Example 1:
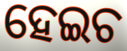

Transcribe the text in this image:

ହେଇଚ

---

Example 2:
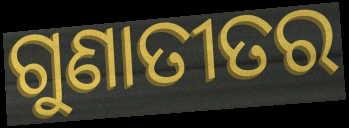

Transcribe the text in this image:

ଗୁଣାତୀତର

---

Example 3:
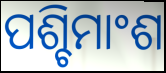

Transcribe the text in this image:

ପଶ୍ଚିମାଂଶ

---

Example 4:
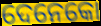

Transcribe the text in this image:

ଦେନେକୋ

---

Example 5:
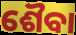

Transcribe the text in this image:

ଶୈବା